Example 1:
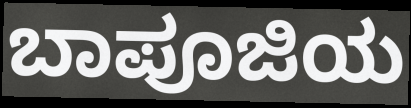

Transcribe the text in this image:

ಬಾಪೂಜಿಯ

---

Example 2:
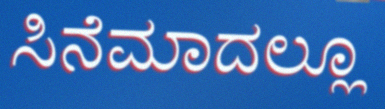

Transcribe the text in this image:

ಸಿನೆಮಾದಲ್ಲೂ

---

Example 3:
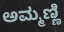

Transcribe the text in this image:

ಅಮ್ಮಣ್ಣಿ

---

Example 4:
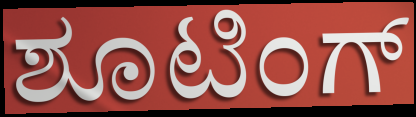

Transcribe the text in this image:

ಶೂಟಿಂಗ್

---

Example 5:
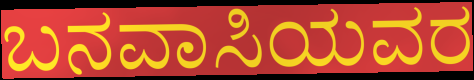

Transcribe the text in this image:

ಬನವಾಸಿಯವರ